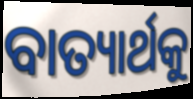
ବାତ୍ୟାର୍ଥକୁ